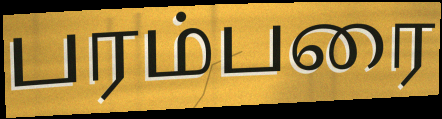
பரம்பரை